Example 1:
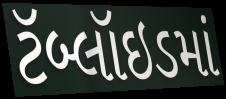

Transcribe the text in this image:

ટૅબ્લૉઇડમાં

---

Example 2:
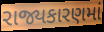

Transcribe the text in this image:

રાજ્યકારણમાં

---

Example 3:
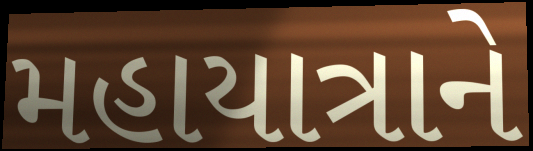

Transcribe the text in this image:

મહાયાત્રાને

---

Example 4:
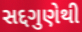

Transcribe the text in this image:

સદ્દગુણેથી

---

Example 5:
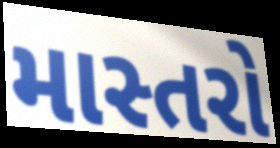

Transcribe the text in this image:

માસ્તરો